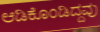
ಆಡಿಕೊಂಡಿದ್ದವು